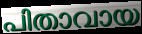
പിതാവായ